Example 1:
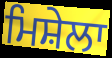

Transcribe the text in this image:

ਮਿਸ਼ੇਲਾ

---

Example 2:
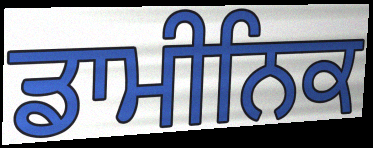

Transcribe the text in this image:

ਡਾਮੀਨਿਕ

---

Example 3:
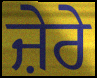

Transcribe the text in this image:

ਜ਼ੇਰੇ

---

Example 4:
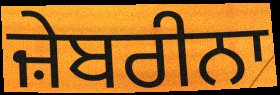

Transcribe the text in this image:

ਜ਼ੇਬਰੀਨਾ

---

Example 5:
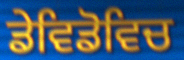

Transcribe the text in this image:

ਡੇਵਿਡੋਵਿਚ